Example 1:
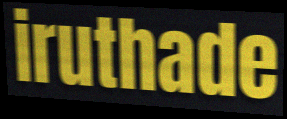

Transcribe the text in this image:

iruthade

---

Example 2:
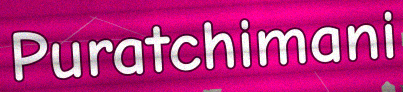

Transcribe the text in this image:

Puratchimani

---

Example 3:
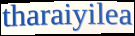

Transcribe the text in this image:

tharaiyilea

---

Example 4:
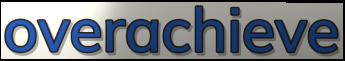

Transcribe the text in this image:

overachieve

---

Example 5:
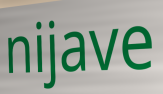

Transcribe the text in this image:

nijave